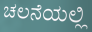
ಚಲನೆಯಲ್ಲಿ